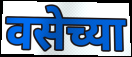
वसेच्या